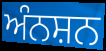
ਅੰਨਸ਼ਨ